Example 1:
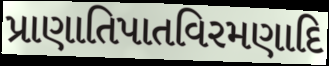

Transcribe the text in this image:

પ્રાણાતિપાતવિરમણાદિ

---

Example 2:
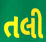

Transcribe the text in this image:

તલી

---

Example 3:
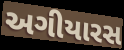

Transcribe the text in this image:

અગીયારસ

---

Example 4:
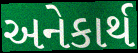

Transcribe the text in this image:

અનેકાર્થ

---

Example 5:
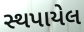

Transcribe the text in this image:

સ્થપાયેલ